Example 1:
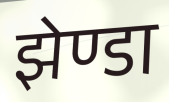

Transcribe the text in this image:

झेण्डा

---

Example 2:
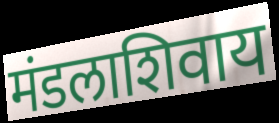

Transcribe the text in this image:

मंडलाशिवाय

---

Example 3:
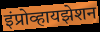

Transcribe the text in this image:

इंप्रोव्हायझेशन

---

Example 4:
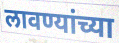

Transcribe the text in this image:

लावण्यांच्या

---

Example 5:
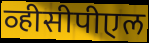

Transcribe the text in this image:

व्हीसीपीएल